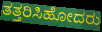
ತತ್ತರಿಸಿಹೋದರು